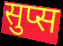
सुप्स